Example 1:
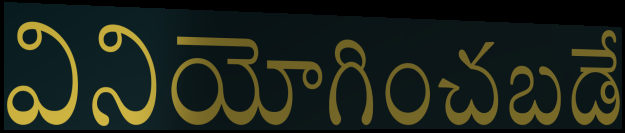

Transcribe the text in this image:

వినియోగించబడే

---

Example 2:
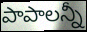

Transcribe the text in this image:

పాపాలన్నీ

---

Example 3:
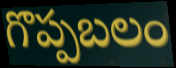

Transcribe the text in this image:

గొప్పబలం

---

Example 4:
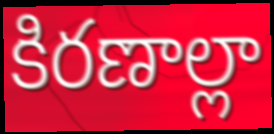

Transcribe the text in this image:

కిరణాల్లా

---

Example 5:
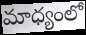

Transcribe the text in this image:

మాధ్యంలో